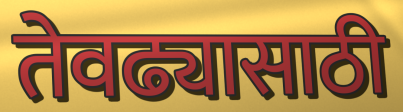
तेवढ्यासाठी